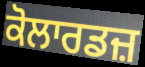
ਕੋਲਾਰਡਜ਼